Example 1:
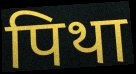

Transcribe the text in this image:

पिथा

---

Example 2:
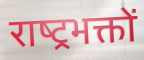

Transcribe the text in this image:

राष्ट्रभक्तों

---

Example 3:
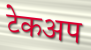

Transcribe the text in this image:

टेकअप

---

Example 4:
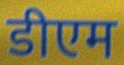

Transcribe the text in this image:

डीएम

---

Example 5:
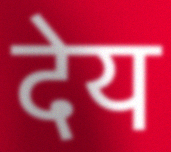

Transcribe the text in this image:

देय